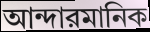
আন্দারমানিক